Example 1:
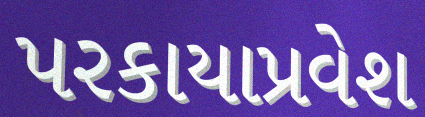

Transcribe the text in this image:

પરકાયાપ્રવેશ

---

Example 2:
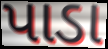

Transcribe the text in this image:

પાડા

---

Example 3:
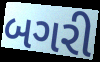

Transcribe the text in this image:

બગરી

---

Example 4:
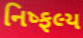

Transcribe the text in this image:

નિષ્ફલ્ય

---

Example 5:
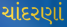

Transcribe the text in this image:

ચાંદરણાં